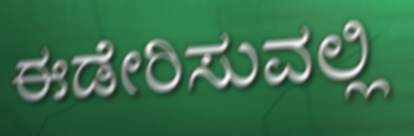
ಈಡೇರಿಸುವಲ್ಲಿ